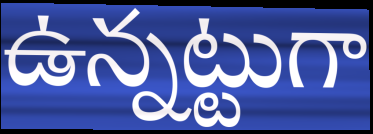
ఉన్నట్టుగా